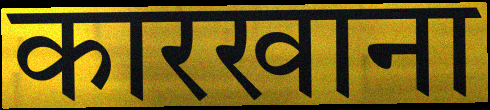
कारखाना